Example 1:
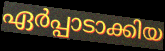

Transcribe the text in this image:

ഏർപ്പാടാക്കിയ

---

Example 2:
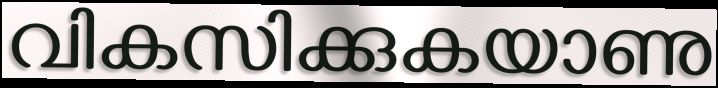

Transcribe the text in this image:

വികസിക്കുകയാണു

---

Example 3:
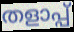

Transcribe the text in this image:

തളാപ്പ്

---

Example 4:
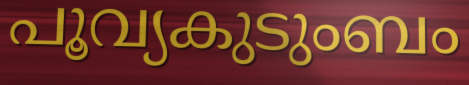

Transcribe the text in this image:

പൂവ്യകുടുംബം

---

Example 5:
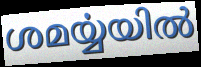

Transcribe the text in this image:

ശമൎയ്യയിൽ